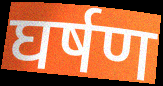
घर्षण